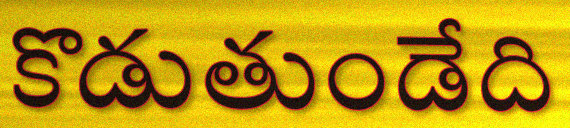
కొడుతుండేది